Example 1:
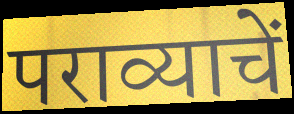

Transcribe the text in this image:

पराव्याचें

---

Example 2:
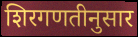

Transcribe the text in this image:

शिरगणतीनुसार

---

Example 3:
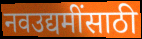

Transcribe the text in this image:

नवउद्यमींसाठी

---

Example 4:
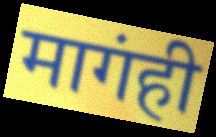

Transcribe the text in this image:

मागंही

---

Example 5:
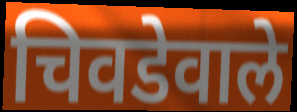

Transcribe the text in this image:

चिवडेवाले